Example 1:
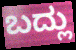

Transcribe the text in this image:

ಬದ್ಲು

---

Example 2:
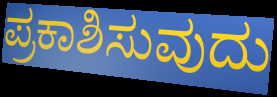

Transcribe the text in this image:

ಪ್ರಕಾಶಿಸುವುದು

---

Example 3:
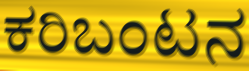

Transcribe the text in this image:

ಕರಿಬಂಟನ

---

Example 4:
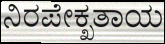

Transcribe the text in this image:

ನಿರಪೇಕ್ಖತಾಯ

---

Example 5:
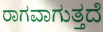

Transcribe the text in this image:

ರಾಗವಾಗುತ್ತದೆ